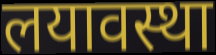
लयावस्था